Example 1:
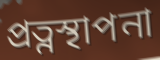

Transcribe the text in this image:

প্রত্নস্থাপনা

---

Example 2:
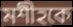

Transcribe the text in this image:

মশীহকে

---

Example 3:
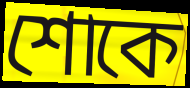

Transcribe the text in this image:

শোকে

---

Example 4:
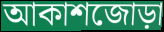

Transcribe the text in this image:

আকাশজোড়া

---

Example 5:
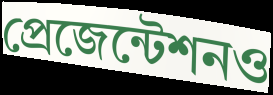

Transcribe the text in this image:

প্রেজেন্টেশনও